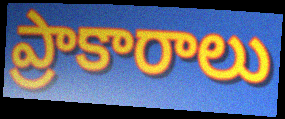
ప్రాకారాలు